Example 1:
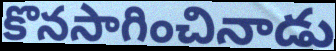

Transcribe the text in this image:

కొనసాగించినాడు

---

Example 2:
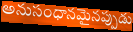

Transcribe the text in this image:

అనుసంధానమైనప్పుడు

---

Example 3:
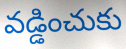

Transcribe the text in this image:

వడ్డించుకు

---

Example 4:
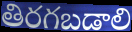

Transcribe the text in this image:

తిరగబడాలి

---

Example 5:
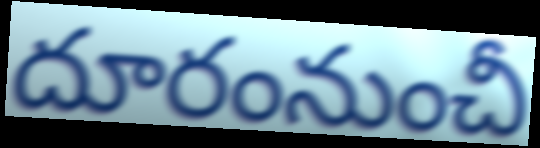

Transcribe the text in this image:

దూరంనుంచీ